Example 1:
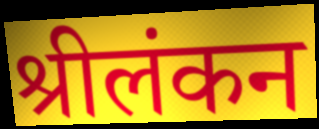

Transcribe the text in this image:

श्रीलंकन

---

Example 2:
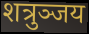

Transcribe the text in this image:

शत्रुञ्जय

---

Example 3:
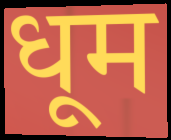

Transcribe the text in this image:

धूम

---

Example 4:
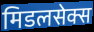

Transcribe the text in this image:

मिडलसेक्स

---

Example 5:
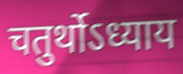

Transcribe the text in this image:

चतुर्थोऽध्याय